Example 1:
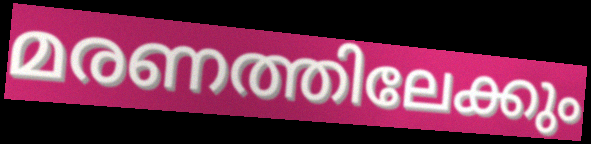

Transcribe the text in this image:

മരണത്തിലേക്കും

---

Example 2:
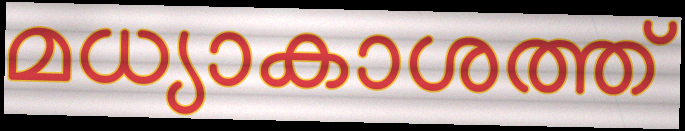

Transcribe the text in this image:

മധ്യാകാശത്ത്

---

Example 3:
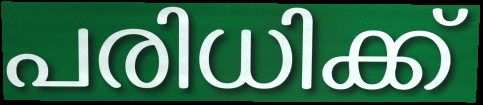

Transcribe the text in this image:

പരിധിക്ക്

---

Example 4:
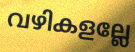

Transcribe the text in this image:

വഴികളല്ലേ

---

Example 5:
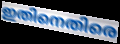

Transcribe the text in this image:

ഇതിനെതിരെ